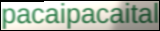
pacaipacaital